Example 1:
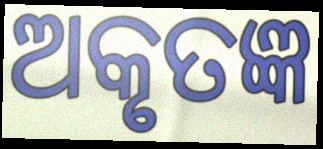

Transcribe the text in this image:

ଅକୃତଜ୍ଞ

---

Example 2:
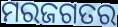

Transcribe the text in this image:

ମରଜଗତର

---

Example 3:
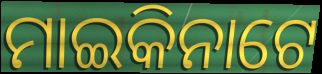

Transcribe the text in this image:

ମାଇକିନାଟେ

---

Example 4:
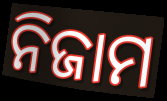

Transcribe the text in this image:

ନିଜାମ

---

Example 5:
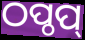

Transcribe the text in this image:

ଠପ୍ଠପ୍